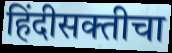
हिंदीसक्तीचा